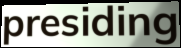
presiding